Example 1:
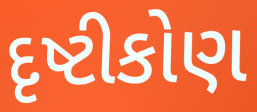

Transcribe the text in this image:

દૃષ્ટીકોણ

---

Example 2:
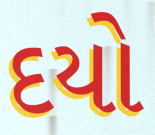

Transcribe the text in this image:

દયો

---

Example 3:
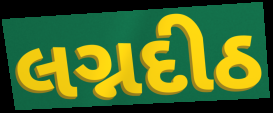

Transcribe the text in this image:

લગ્નદીઠ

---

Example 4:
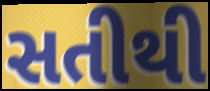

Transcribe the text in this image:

સતીથી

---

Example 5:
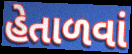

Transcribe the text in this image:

હેતાળવાં